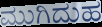
ಮುಗಿದುಹ